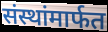
संस्थांमार्फत